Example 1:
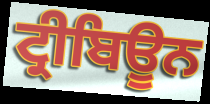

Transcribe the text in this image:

ਟ੍ਰੀਬਿਊਨ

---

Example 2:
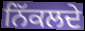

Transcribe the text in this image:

ਨਿੱਕਲਦੇ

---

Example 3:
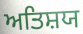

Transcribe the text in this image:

ਅਤਿਸ਼ਯ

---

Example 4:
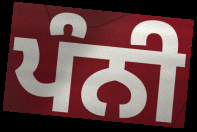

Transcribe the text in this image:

ਪੰਨੀ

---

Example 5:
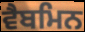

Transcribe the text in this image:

ਵੈਬਮਿਨ